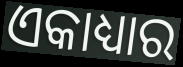
ଏକାଧ୍ୟାର